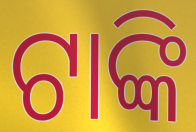
ଟାଙ୍କି